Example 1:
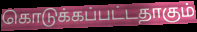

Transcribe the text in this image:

கொடுக்கப்பட்டதாகும்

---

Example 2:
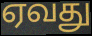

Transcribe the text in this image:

ஏவது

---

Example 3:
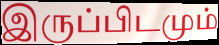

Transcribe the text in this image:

இருப்பிடமும்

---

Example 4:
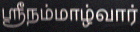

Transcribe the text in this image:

ஸ்ரீநம்மாழ்வார்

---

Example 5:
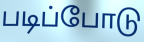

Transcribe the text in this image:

படிப்போடு